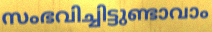
സംഭവിച്ചിട്ടുണ്ടാവാം